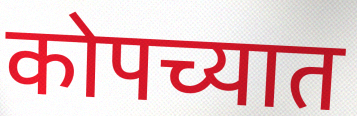
कोपच्यात